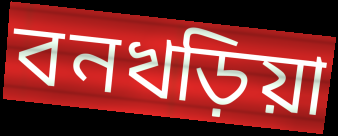
বনখড়িয়া